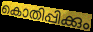
കൊതിപ്പിക്കും